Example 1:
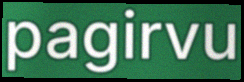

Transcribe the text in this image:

pagirvu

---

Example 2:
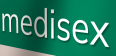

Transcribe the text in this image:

medisex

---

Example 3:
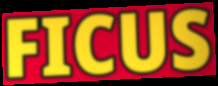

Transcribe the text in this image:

FICUS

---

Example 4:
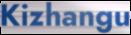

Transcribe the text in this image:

Kizhangu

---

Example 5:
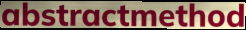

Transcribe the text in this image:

abstractmethod